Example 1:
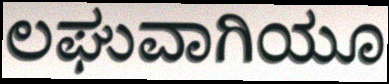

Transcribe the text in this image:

ಲಘುವಾಗಿಯೂ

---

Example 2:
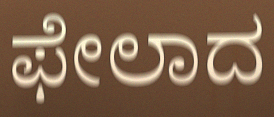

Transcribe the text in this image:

ಫೇಲಾದ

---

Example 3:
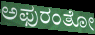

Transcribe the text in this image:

ಅಫುರಂತೋ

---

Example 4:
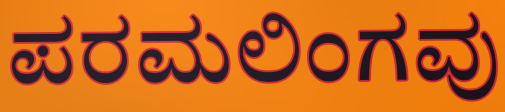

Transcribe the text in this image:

ಪರಮಲಿಂಗವು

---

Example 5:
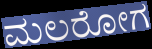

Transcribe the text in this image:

ಮಲರೋಗ